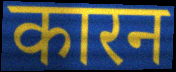
कारन